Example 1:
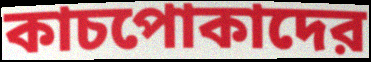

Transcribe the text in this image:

কাচপোকাদের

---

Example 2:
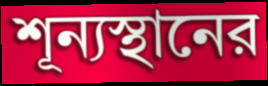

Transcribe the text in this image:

শূন্যস্থানের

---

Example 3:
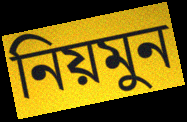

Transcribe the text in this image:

নিয়মুন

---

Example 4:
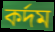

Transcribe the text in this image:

কর্দম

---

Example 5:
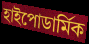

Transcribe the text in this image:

হাইপোডার্মিক